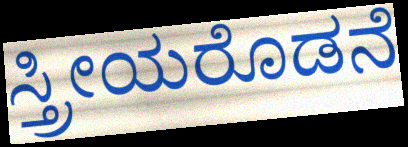
ಸ್ತ್ರೀಯರೊಡನೆ